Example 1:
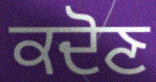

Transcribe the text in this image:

ਕਦੋਣ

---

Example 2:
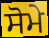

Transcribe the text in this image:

ਸੋਮੇ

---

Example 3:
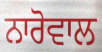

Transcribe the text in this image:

ਨਾਰੋਵਾਲ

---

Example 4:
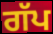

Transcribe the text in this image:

ਗੱਪ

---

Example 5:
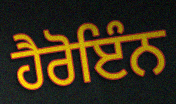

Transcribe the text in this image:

ਹੈਰੋਇੰਨ